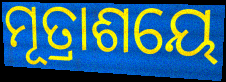
ମୂତ୍ରାଶୟେ